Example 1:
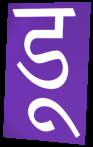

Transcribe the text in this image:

डू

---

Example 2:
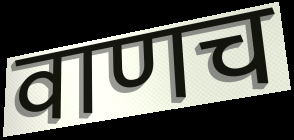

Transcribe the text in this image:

वाणच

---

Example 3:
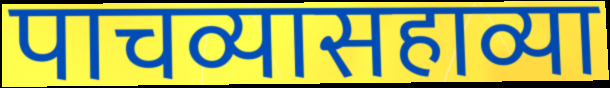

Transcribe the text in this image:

पाचव्यासहाव्या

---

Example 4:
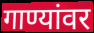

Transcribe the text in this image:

गाण्यांवर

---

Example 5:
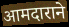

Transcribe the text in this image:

आमदाराने